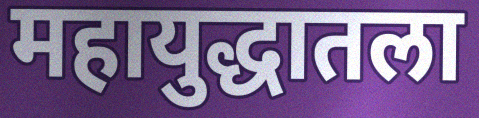
महायुद्धातला